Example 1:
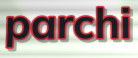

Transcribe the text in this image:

parchi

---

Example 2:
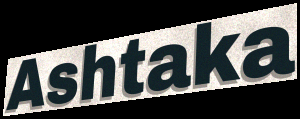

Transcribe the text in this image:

Ashtaka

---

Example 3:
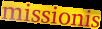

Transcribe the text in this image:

missionis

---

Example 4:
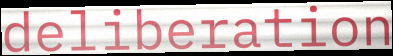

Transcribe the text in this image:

deliberation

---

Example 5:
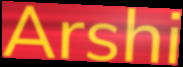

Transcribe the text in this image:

Arshi